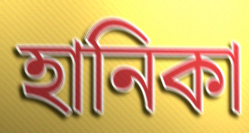
হানিকা